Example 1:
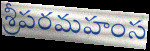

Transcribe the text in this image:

శ్రీపరమహంస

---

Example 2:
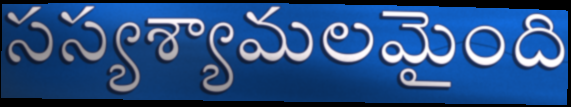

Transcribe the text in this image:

సస్యశ్యామలమైంది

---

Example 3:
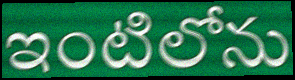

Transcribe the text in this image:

ఇంటిలోను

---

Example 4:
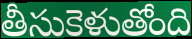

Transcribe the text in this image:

తీసుకెళుతోంది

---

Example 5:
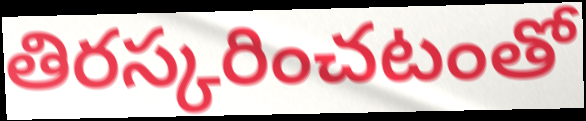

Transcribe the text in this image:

తిరస్కరించటంతో